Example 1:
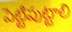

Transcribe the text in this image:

పెట్టిపుట్టాలి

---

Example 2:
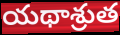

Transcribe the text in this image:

యథాశ్రుత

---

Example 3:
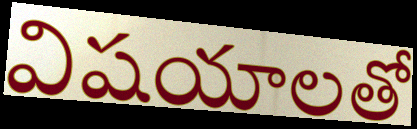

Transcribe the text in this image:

విషయాలతో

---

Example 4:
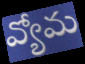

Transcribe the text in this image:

వ్యోమ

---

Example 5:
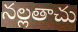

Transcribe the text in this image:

నల్లతాచు